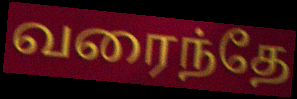
வரைந்தே